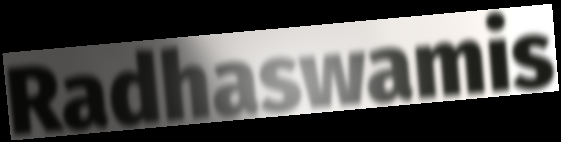
Radhaswamis